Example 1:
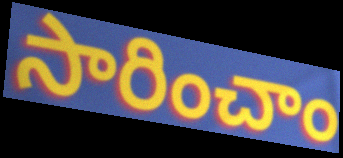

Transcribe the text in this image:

సారించాం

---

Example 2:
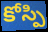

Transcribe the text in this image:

కోస్పి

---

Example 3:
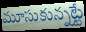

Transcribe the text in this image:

మూసుకున్నట్టే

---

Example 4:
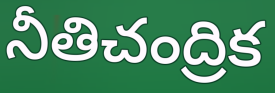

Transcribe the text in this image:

నీతిచంద్రిక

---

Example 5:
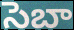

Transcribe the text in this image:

సెబా